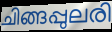
ചിങ്ങപ്പുലരി